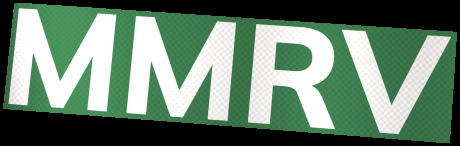
MMRV